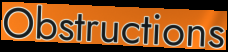
Obstructions